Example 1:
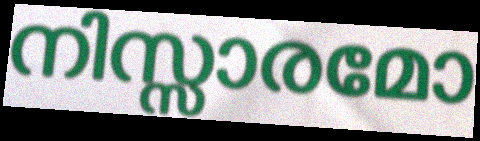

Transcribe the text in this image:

നിസ്സാരമോ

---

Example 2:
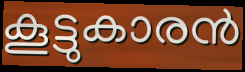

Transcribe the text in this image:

കൂട്ടുകാരൻ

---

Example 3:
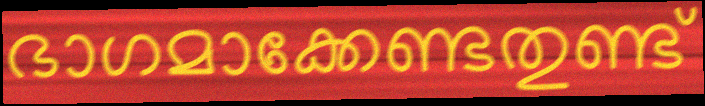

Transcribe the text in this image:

ഭാഗമാക്കേണ്ടതുണ്ട്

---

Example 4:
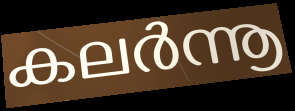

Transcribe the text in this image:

കലർന്നൂ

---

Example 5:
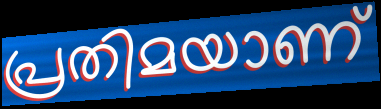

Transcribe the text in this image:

പ്രതിമയാണ്